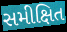
સમીક્ષિત